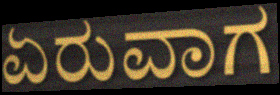
ಏರುವಾಗ